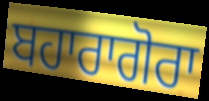
ਬਹਾਰਾਗੋਰਾ